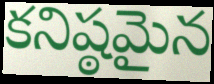
కనిష్ఠమైన